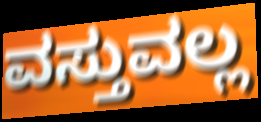
ವಸ್ತುವಲ್ಲ